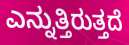
ಎನ್ನುತ್ತಿರುತ್ತದೆ